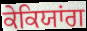
ਕੇਕਿਯਾਂਗ